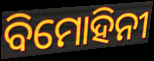
ବିମୋହିନୀ